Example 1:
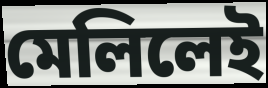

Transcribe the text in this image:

মেলিলেই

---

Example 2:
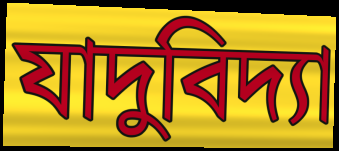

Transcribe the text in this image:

যাদুবিদ্যা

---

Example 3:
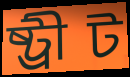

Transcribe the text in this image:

ষ্ট্ৰীট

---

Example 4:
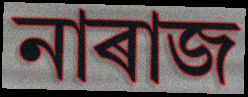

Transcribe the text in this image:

নাৰাজ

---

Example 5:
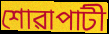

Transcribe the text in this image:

শোৱাপাটী